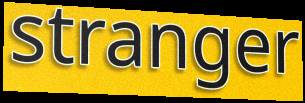
stranger